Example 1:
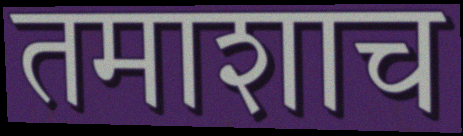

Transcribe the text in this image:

तमाशाच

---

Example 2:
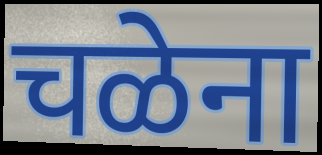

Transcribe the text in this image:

चळेना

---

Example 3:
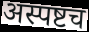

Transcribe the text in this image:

अस्पष्टच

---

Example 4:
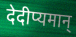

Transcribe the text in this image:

देदीप्यमान्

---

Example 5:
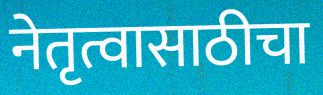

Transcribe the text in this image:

नेतृत्वासाठीचा